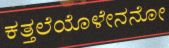
ಕತ್ತಲೆಯೊಳೇನನೋ